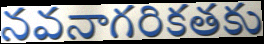
నవనాగరికతకు